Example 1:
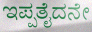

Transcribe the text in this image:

ಇಪ್ಪತೈದನೇ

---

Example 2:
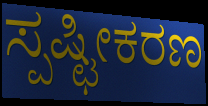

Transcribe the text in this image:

ಸ್ಪಷ್ಟೀಕರಣ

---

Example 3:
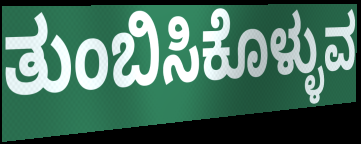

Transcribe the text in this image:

ತುಂಬಿಸಿಕೊಳ್ಳುವ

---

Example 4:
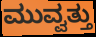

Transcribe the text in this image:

ಮುವ್ವತ್ತು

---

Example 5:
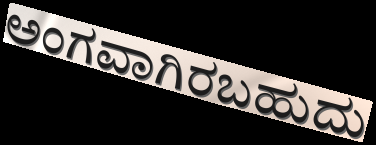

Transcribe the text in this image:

ಅಂಗವಾಗಿರಬಹುದು